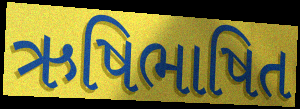
ઋષિભાષિત